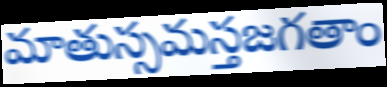
మాతుస్సమస్తజగతాం